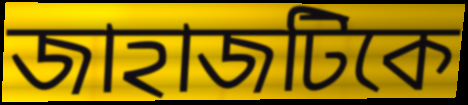
জাহাজটিকে